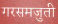
गरसमजुती